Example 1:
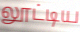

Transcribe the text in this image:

லூட்டிய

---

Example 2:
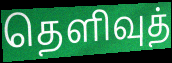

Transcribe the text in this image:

தெளிவுத்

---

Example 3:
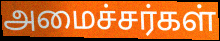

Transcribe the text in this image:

அமைச்சர்கள்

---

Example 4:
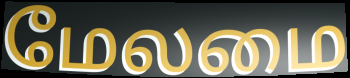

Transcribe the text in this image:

மேலமை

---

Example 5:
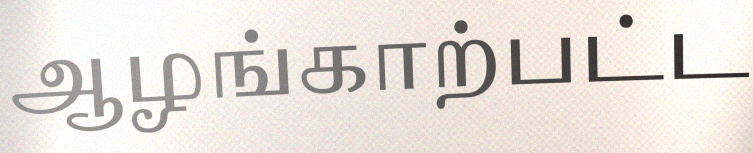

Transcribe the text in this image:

ஆழங்காற்பட்ட